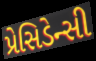
પ્રેસિડેન્સી